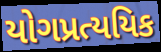
યોગપ્રત્યયિક